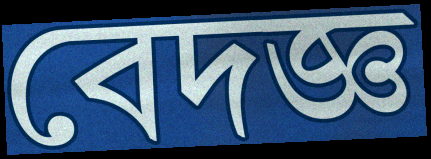
বেদজ্ঞ